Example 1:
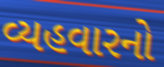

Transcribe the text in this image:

વ્યહવારનો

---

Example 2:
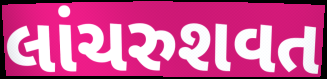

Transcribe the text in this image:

લાંચરુશવત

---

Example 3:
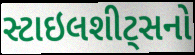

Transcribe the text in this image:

સ્ટાઇલશીટ્સનો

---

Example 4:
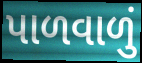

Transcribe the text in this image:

પાળવાળું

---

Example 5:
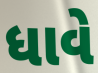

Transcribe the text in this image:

ધાવે